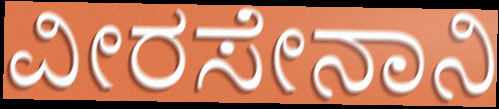
ವೀರಸೇನಾನಿ